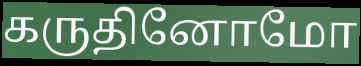
கருதினோமோ